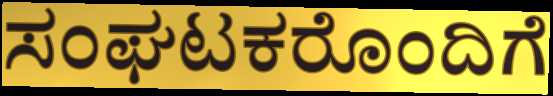
ಸಂಘಟಕರೊಂದಿಗೆ